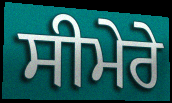
ਸੀਮੇਰੇ